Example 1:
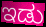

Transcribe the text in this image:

ಇಡು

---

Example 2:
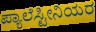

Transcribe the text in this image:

ಪ್ಯಾಲೆಸ್ಟೀನಿಯರ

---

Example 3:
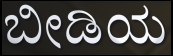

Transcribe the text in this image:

ಬೀಡಿಯ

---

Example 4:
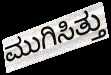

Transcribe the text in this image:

ಮುಗಿಸಿತ್ತು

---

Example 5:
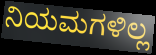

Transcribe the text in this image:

ನಿಯಮಗಳಿಲ್ಲ